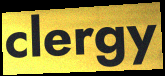
clergy